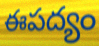
ఈపద్యం